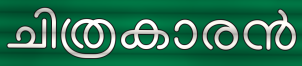
ചിത്രകാരൻ